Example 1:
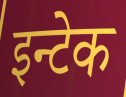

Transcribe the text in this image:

इन्टेक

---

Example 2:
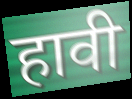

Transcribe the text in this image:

हावी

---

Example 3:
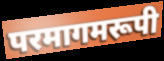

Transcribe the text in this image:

परमागमरूपी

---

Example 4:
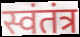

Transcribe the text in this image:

स्वंतंत्र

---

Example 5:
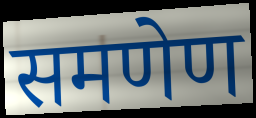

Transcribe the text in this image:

समणेण